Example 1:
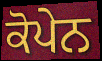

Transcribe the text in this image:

ਕੋਪੇਨ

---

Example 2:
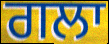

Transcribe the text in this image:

ਗਲਾ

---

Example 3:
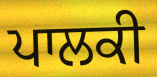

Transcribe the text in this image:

ਪਾਲਕੀ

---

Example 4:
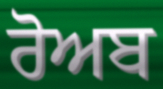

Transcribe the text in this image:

ਰੋਅਬ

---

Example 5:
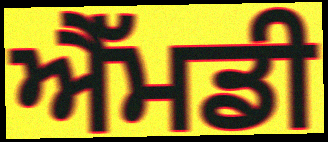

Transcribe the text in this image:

ਐੱਮਡੀ